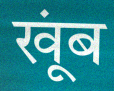
खूंब